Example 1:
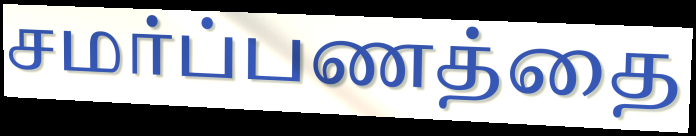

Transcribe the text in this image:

சமர்ப்பணத்தை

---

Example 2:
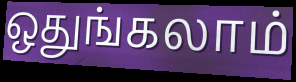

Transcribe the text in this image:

ஒதுங்கலாம்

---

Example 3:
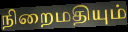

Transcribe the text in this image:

நிறைமதியும்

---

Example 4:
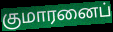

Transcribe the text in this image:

குமாரனைப்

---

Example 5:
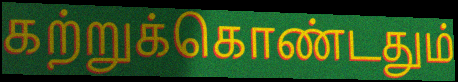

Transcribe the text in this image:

கற்றுக்கொண்டதும்